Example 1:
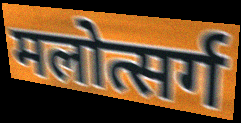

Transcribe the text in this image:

मलोत्सर्ग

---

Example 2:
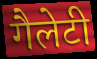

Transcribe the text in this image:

गैलेटी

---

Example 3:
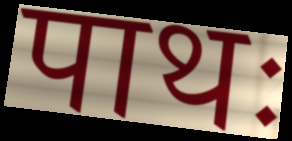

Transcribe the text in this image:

पाथः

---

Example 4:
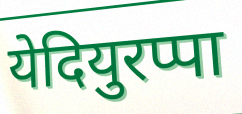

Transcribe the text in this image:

येदियुरप्पा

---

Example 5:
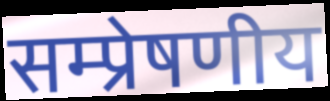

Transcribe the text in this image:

सम्प्रेषणीय